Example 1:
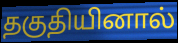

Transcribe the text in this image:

தகுதியினால்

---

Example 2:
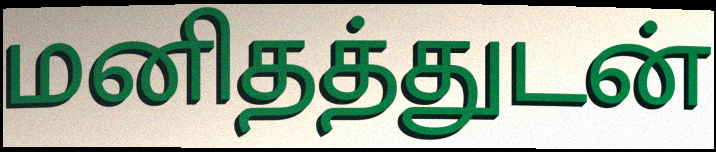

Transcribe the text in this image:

மனிதத்துடன்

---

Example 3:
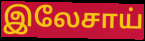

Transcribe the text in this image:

இலேசாய்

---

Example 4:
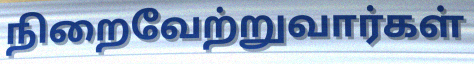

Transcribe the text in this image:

நிறைவேற்றுவார்கள்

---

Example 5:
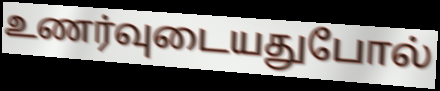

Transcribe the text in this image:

உணர்வுடையதுபோல்